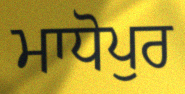
ਮਾਧੋਪੁਰ